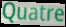
Quatre